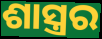
ଶାସ୍ତ୍ରର